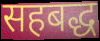
सहबद्ध